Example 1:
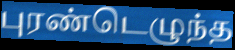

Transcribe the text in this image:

புரண்டெழுந்த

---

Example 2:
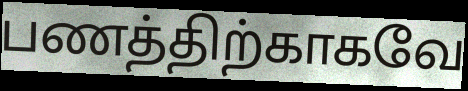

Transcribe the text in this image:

பணத்திற்காகவே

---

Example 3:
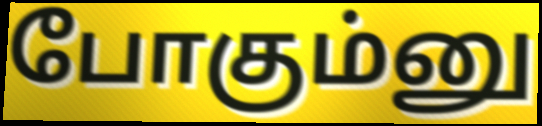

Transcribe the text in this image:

போகும்னு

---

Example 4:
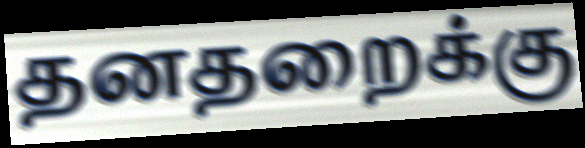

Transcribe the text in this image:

தனதறைக்கு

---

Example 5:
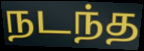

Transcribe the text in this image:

நடந்த